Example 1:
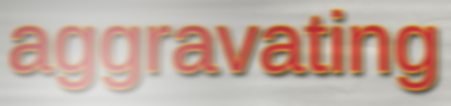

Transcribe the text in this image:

aggravating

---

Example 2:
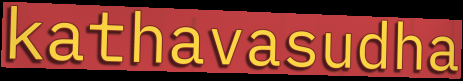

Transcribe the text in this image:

kathavasudha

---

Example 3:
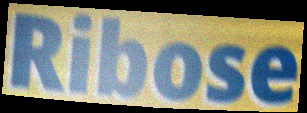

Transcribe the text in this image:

Ribose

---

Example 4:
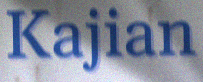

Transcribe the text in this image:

Kajian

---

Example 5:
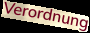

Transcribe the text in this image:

Verordnung